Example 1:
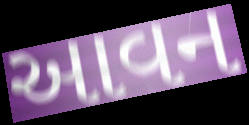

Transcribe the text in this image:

આવન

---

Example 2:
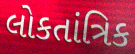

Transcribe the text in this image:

લોકતાંત્રિક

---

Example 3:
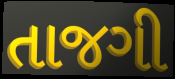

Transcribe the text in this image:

તાજગી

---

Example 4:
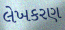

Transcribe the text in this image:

લેખકરણ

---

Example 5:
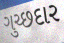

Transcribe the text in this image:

ગુચ્છદાર